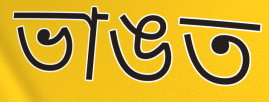
ভাঙত